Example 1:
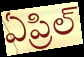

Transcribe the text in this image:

ఏప్రిల్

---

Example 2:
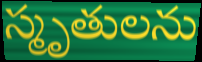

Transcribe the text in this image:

స్మృతులను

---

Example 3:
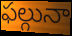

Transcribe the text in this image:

ఫల్గునా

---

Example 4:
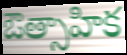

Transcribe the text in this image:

ఔత్సాహిక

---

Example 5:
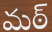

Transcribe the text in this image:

మఠ్